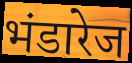
भंडारेज